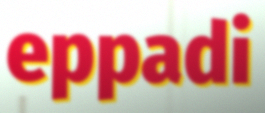
eppadi